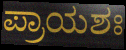
ಪ್ರಾಯಶಃ